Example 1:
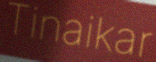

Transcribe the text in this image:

Tinaikar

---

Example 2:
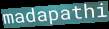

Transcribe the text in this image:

madapathi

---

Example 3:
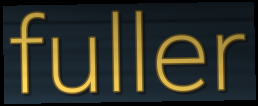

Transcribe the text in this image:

fuller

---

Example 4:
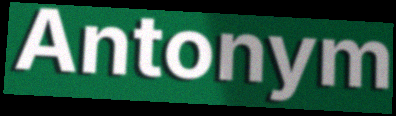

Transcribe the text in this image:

Antonym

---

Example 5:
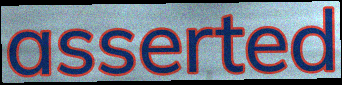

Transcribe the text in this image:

asserted